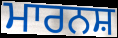
ਮਾਰਨਸ਼